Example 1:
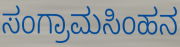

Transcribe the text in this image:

ಸಂಗ್ರಾಮಸಿಂಹನ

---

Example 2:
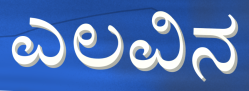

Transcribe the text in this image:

ಎಲವಿನ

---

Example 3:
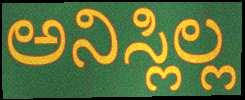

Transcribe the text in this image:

ಅನಿಸ್ಲಿಲ್ಲ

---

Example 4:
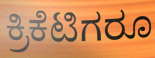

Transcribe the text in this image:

ಕ್ರಿಕೆಟಿಗರೂ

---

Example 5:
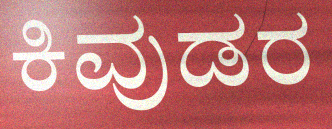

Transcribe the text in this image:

ಕಿವುಡರ